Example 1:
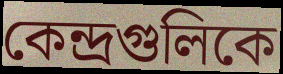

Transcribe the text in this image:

কেন্দ্রগুলিকে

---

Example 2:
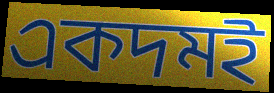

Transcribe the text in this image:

একদমই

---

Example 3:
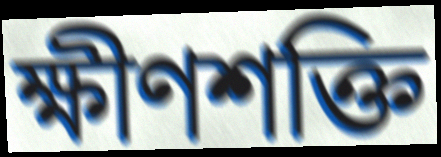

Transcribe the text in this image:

ক্ষীণশক্তি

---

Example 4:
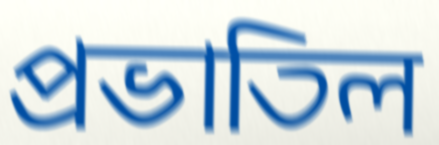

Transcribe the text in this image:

প্রভাতিল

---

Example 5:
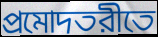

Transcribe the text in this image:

প্রমোদতরীতে